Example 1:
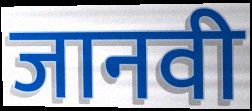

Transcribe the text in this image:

जानवी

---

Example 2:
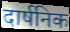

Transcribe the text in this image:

दार्षनिक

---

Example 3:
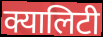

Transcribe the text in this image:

क्यालिटी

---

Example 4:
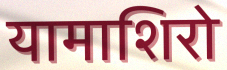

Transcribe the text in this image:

यामाशिरो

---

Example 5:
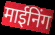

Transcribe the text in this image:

माईनिंग